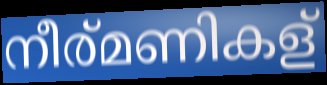
നീര്മണികള്